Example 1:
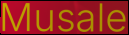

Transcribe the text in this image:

Musale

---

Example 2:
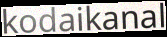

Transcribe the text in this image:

kodaikanal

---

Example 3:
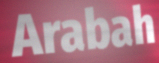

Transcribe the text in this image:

Arabah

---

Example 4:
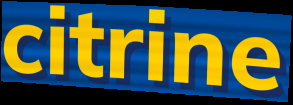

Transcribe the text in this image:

citrine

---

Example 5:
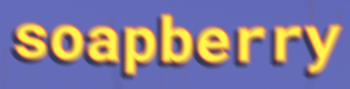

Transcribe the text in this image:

soapberry